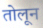
तोलून